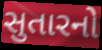
સુતારનો